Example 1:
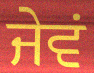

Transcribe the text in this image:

ਜੇਵਂ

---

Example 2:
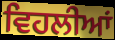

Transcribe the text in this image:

ਵਿਹਲੀਆਂ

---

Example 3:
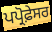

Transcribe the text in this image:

ਪਪ੍ਰੋਫ਼ੇਸਰ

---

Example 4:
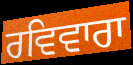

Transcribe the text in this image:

ਰਵਿਵਾਰਾ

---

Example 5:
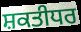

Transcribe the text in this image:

ਸ਼ਕਤੀਧਰ